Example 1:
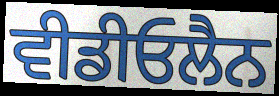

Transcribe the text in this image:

ਵੀਡੀਓਲੈਨ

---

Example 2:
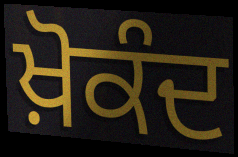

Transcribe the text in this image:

ਖ਼ੋਕੰਦ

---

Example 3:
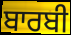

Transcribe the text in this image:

ਬਾਰਬੀ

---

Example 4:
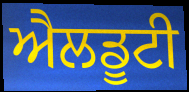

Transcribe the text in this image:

ਐਲਡੂਟੀ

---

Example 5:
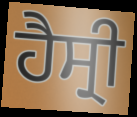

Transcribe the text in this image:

ਹੈਸ੍ਰੀ